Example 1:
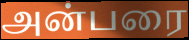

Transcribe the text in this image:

அன்பரை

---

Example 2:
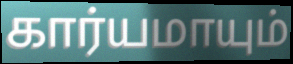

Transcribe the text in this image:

கார்யமாயும்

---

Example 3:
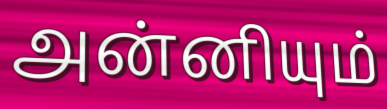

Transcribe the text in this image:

அன்னியும்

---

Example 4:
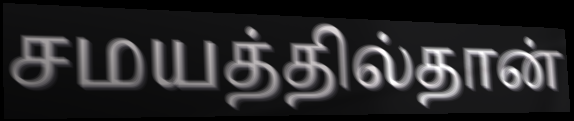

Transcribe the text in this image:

சமயத்தில்தான்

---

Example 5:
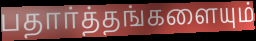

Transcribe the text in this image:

பதார்த்தங்களையும்